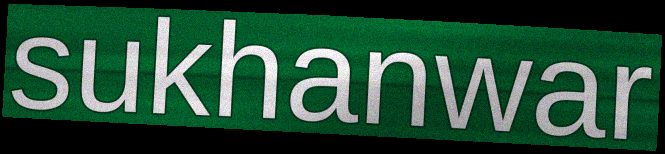
sukhanwar